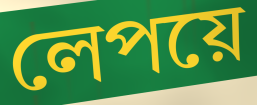
লেপয়ে